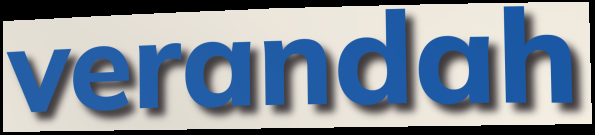
verandah